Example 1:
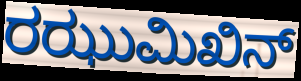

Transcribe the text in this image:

ರಝುಮಿಖಿನ್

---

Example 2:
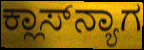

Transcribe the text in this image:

ಕ್ಲಾಸ್‌ನ್ಯಾಗ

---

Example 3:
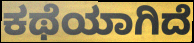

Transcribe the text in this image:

ಕಥೆಯಾಗಿದೆ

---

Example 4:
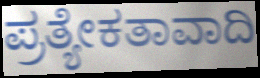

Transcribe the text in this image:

ಪ್ರತ್ಯೇಕತಾವಾದಿ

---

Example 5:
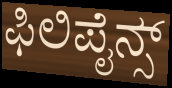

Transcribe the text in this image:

ಫಿಲಿಪೈನ್ಸ್